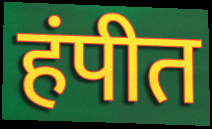
हंपीत